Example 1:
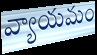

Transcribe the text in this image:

వ్యాయమం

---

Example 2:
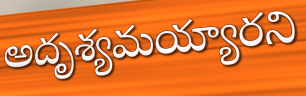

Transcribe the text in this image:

అదృశ్యమయ్యారని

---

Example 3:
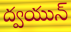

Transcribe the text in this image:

ద్వయున్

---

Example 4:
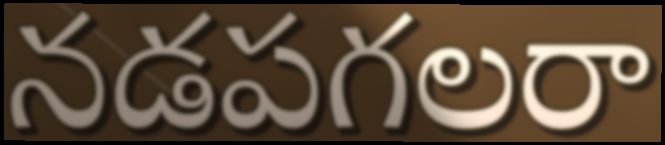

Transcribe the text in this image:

నడపగలరా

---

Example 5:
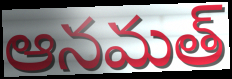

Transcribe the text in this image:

ఆనమత్